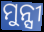
ମୁନ୍ସୀ